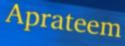
Aprateem